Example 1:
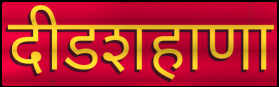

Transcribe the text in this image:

दीडशहाणा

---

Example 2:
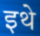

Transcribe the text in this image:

इथे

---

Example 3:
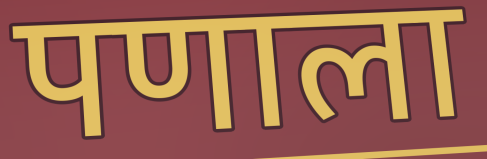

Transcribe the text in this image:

पणाला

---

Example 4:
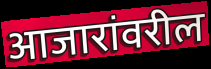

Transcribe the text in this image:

आजारांवरील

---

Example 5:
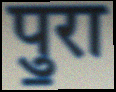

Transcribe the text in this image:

पु॒रा